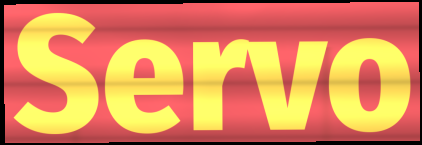
Servo